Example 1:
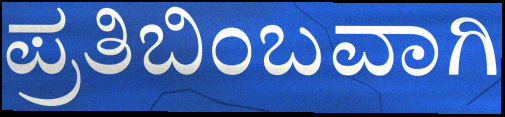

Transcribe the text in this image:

ಪ್ರತಿಬಿಂಬವಾಗಿ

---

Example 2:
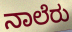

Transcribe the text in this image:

ನಾಲೆರು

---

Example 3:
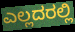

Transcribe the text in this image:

ಎಲ್ಲದರಲ್ಲಿ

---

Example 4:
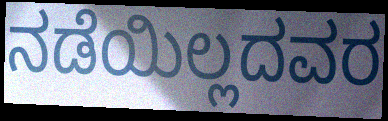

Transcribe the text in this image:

ನಡೆಯಿಲ್ಲದವರ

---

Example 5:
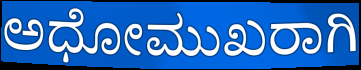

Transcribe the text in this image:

ಅಧೋಮುಖರಾಗಿ